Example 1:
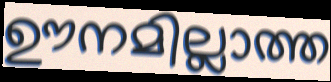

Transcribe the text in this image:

ഊനമില്ലാത്ത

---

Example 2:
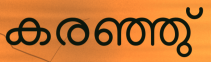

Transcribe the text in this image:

കരഞ്ഞു്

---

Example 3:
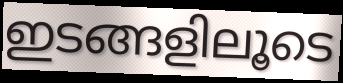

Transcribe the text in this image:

ഇടങ്ങളിലൂടെ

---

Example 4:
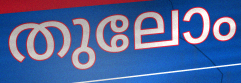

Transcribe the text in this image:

തുലോം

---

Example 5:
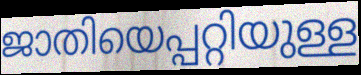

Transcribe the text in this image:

ജാതിയെപ്പറ്റിയുള്ള